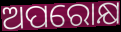
ଅପରୋକ୍ଷ